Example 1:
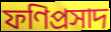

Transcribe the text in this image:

ফণিপ্রসাদ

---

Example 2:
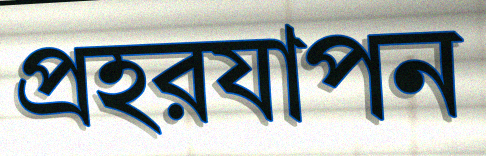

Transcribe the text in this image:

প্রহরযাপন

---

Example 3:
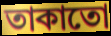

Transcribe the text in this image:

তাকাতো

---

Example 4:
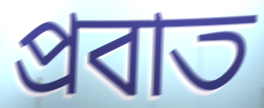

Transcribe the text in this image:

প্রবাত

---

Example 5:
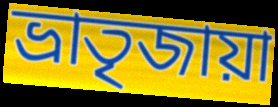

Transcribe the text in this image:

ভ্রাতৃজায়া